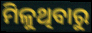
ମିଳୁଥିବାରୁ